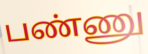
பண்ணு